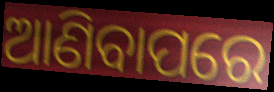
ଆଣିବାପରେ